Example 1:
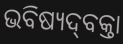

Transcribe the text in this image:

ଭବିଷ୍ୟଦ୍‌ବକ୍ତା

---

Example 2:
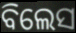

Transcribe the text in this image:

ବିଲେସ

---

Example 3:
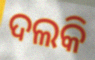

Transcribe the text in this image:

ଦଲକି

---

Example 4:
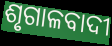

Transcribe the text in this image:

ଶୃଗାଳବାଦୀ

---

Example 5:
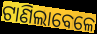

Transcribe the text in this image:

ଟାଣିଲାବେଳେ